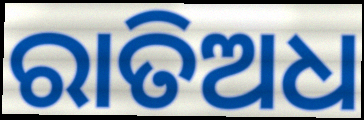
ରାତିଅଧ